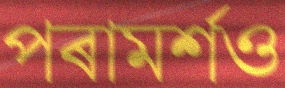
পৰামৰ্শও